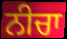
ਨੀਚਾ